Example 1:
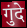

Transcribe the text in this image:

गुंदे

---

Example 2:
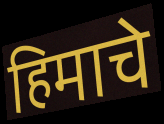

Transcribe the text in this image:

हिमाचे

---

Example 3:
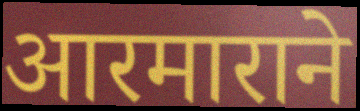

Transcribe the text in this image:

आरमाराने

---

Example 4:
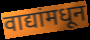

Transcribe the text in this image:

वाद्यांमधून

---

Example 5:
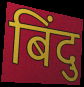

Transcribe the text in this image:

बिंदु